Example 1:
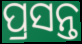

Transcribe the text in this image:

ପ୍ରସନ୍ତ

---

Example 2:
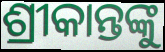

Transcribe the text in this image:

ଶ୍ରୀକାନ୍ତଙ୍କୁ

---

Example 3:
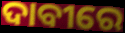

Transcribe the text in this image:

ଦାବୀରେ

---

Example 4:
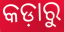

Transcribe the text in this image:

କଡ଼ାରୁ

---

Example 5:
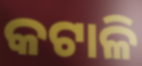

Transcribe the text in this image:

କଟାଳି